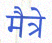
मैत्रे